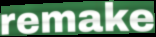
remake